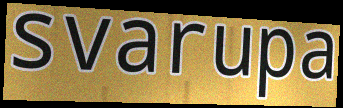
svarupa